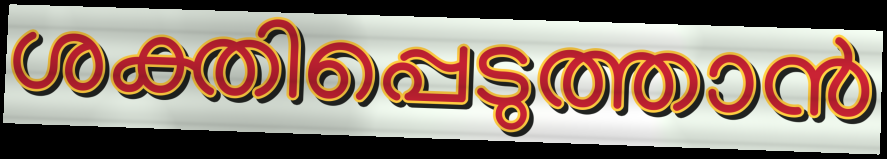
ശക്തിപ്പെടുത്താൻ